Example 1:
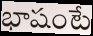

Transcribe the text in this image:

భాషంటే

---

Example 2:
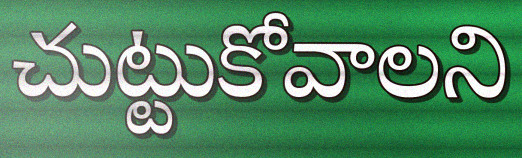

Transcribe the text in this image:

చుట్టుకోవాలని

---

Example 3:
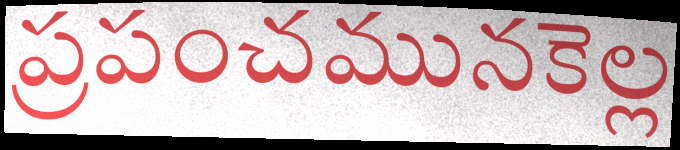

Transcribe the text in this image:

ప్రపంచమునకెల్ల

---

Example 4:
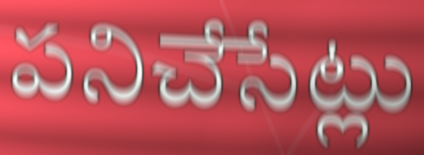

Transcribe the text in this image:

పనిచేసేట్లు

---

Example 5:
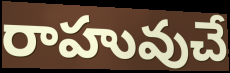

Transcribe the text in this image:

రాహువుచే